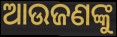
ଆଉଜଣଙ୍କୁ